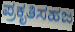
ಪ್ರಕೃತಿಸಹಜ